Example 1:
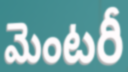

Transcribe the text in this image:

మెంటరీ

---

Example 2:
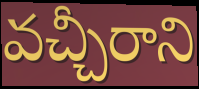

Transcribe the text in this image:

వచ్చీరాని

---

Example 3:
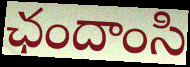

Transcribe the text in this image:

ఛందాంసి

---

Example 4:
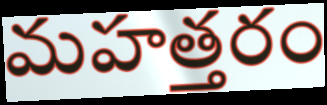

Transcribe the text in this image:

మహత్తరం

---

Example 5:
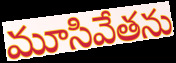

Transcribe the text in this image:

మూసివేతను